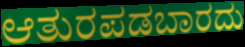
ಆತುರಪಡಬಾರದು